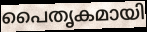
പൈതൃകമായി